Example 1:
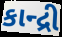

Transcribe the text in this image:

કાન્દ્રી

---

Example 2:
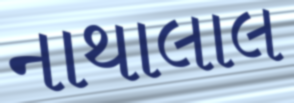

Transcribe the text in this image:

નાથાલાલ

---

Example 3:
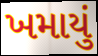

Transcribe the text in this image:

ખમાયું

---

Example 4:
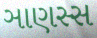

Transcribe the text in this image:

ઞાણસ્સ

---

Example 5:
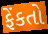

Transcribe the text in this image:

ફેંકતો